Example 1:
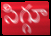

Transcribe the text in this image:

సిగ్గూ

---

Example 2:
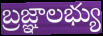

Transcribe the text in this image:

బ్రజ్ఞాలభ్యు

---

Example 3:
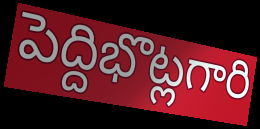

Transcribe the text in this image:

పెద్దిభొట్లగారి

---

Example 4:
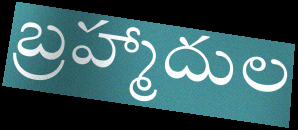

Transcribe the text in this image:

బ్రహ్మాదుల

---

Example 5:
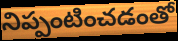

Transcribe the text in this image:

నిప్పంటించడంతో